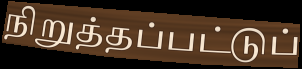
நிறுத்தப்பட்டுப்